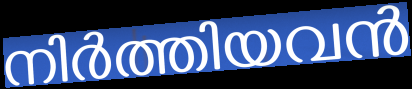
നിർത്തിയവൻ